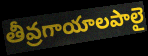
తీవ్రగాయాలపాలై